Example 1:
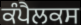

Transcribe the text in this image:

ਕੰਪੈਲਕਸ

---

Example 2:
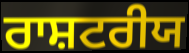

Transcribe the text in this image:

ਰਾਸ਼ਟਰੀਯ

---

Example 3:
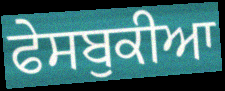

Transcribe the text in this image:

ਫੇਸਬੁਕੀਆ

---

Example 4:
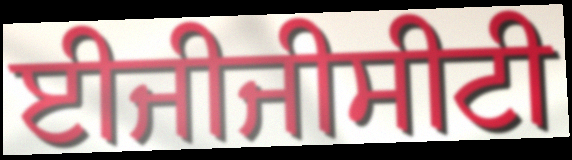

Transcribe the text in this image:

ਈਜੀਜੀਸੀਟੀ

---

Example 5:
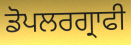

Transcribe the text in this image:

ਡੋਪਲਰਗ੍ਰਾਫੀ